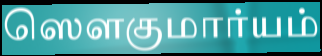
ஸௌகுமார்யம்